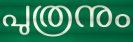
പുത്രനും